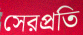
সেরপ্রতি